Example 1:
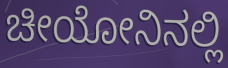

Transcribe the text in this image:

ಚೀಯೋನಿನಲ್ಲಿ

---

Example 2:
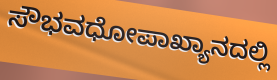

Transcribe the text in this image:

ಸೌಭವಧೋಪಾಖ್ಯಾನದಲ್ಲಿ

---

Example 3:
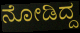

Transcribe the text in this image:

ನೋಡಿದ್ದ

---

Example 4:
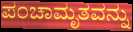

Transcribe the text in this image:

ಪಂಚಾಮೃತವನ್ನು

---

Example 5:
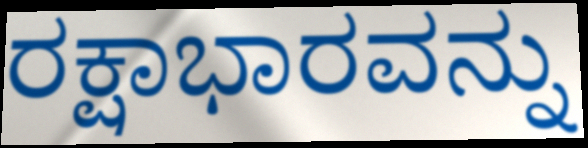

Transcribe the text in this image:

ರಕ್ಷಾಭಾರವನ್ನು